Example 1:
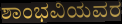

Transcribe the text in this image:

ಶಾಂಭವಿಯವರ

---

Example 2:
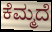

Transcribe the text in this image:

ಕೆಮ್ಮದೆ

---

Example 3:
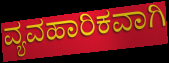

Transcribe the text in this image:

ವ್ಯವಹಾರಿಕವಾಗಿ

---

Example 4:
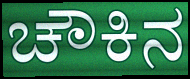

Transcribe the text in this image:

ಚೌಕಿನ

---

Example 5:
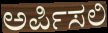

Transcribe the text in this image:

ಅರ್ಪಿಸಲಿ